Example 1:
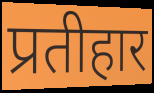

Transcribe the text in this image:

प्रतीहार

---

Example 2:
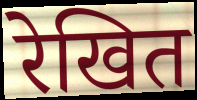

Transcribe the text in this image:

रेखित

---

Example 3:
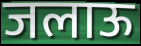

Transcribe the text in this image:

जलाऊ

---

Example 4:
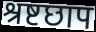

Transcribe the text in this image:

श्रष्टछाप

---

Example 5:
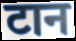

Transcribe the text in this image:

टान